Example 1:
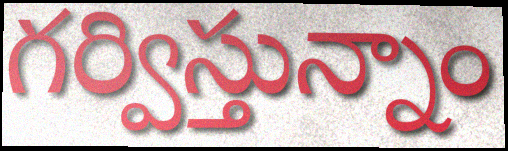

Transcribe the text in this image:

గర్విస్తున్నాం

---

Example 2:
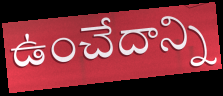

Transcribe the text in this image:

ఉంచేదాన్ని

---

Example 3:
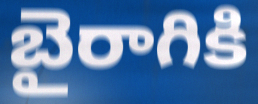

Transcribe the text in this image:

బైరాగికి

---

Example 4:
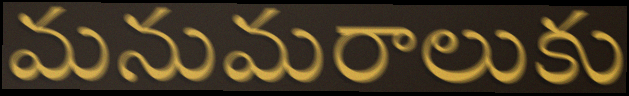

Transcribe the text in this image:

మనుమరాలుకు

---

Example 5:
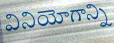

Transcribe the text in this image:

వినియోగాన్ని